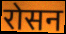
रोसन